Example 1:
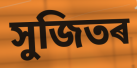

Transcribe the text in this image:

সুজিতৰ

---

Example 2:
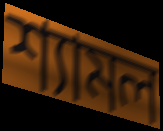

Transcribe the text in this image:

শ্যামল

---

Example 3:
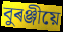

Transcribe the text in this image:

বুৰঞ্জীয়ে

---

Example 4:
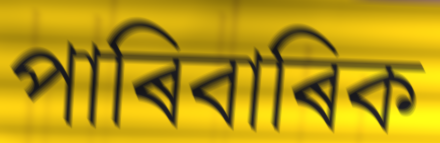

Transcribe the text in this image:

পাৰিবাৰিক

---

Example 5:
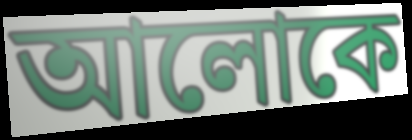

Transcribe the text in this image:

আলোকে